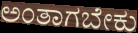
ಅಂತಾಗಬೇಕು